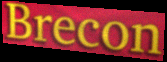
Brecon